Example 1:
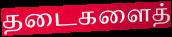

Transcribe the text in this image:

தடைகளைத்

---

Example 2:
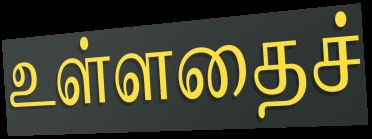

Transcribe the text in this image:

உள்ளதைச்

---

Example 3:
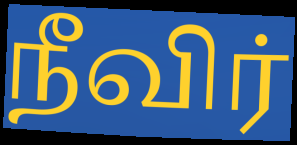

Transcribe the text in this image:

நீவிர்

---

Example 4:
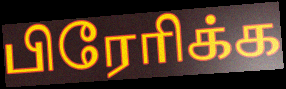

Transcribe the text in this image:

பிரேரிக்க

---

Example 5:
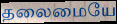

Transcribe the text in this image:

தலைமையே